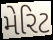
મેરિટ